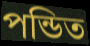
পন্ডিত